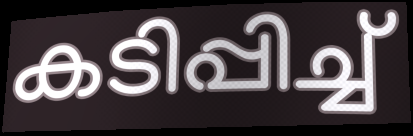
കടിപ്പിച്ച്